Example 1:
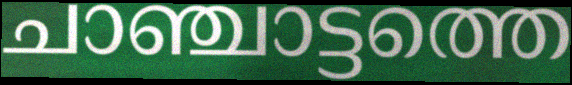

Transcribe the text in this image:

ചാഞ്ചാട്ടത്തെ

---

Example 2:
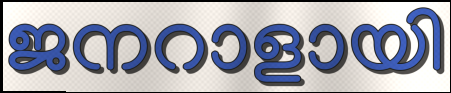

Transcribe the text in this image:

ജനറാളായി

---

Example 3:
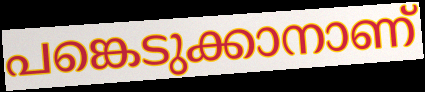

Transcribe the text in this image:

പങ്കെടുക്കാനാണ്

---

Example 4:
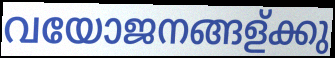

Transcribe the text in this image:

വയോജനങ്ങള്ക്കു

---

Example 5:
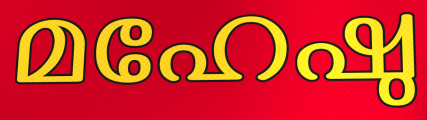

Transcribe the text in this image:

മഹേഷു